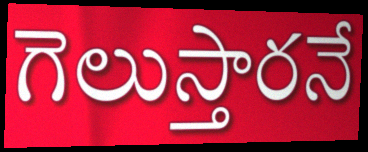
గెలుస్తారనే